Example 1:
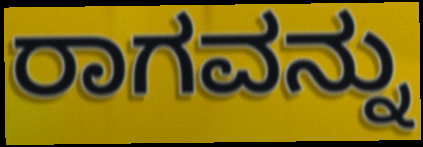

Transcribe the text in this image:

ರಾಗವನ್ನು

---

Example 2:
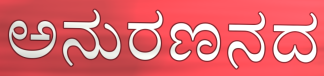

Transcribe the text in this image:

ಅನುರಣನದ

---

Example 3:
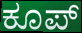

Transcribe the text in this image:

ಕೂಪ್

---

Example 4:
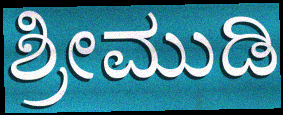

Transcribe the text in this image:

ಶ್ರೀಮುಡಿ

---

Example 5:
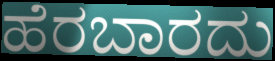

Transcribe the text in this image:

ಹೆರಬಾರದು